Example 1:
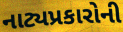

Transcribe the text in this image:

નાટ્યપ્રકારોની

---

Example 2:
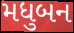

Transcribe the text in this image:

મધુબન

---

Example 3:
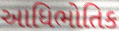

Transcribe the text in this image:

આધિભોતિક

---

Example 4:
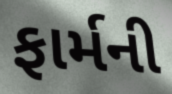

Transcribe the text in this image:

ફાર્મની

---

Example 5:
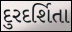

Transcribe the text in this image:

દુરદર્શિતા